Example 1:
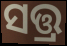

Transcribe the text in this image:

ସତ୍ତ୍ର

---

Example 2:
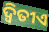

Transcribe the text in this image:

ଦ୍ୱିତୀଏ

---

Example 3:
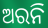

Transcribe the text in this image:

ଅରନି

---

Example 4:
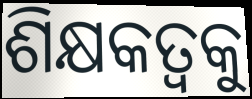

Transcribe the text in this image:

ଶିକ୍ଷକତ୍ଵକୁ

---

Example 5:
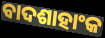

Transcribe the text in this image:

ବାଦଶାହାଂକ